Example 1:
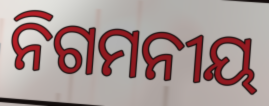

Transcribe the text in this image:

ନିଗମନୀୟ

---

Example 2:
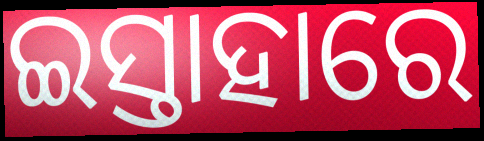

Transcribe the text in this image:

ଇସ୍ତାହାରେ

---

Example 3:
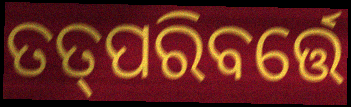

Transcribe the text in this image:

ତତ୍‌ପରିବର୍ତ୍ତେ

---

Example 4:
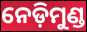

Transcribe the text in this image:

ନେଡ଼ିମୁଣ୍ଡ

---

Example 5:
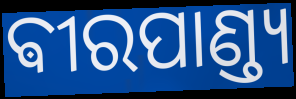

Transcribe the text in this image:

ଵୀରପାଣ୍ଡ୍ୟ